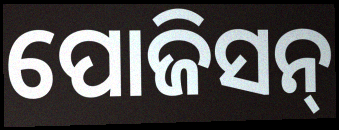
ପୋଜିସନ୍